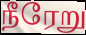
நீரேறு